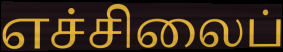
எச்சிலைப்